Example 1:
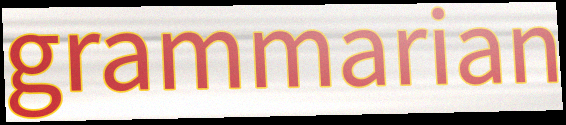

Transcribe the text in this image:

grammarian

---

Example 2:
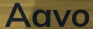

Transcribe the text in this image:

Aavo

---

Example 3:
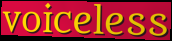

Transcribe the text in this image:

voiceless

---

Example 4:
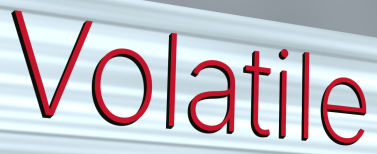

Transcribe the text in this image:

Volatile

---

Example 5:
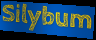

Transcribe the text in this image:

Silybum